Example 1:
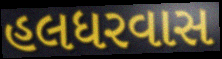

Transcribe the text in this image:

હલધરવાસ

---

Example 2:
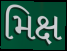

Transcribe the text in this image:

મિક્ષ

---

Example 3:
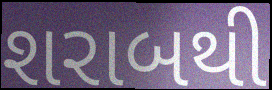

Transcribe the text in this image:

શરાબથી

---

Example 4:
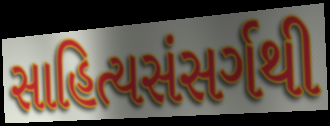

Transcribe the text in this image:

સાહિત્યસંસર્ગથી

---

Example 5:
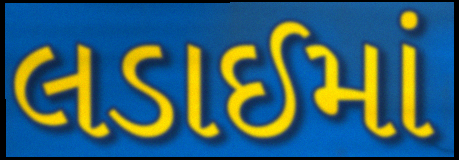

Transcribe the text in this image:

લડાઈમાં